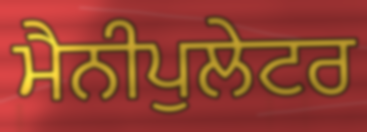
ਮੈਨੀਪੁਲੇਟਰ